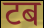
टब